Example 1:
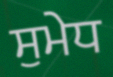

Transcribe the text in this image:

ਸੁਮੇਧ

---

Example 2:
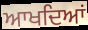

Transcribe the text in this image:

ਆਖਦਿਆਂ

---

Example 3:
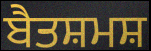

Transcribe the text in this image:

ਬੈਤਸ਼ਮਸ਼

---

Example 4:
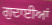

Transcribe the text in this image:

ਗੁਦਾਈਆਂ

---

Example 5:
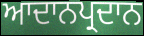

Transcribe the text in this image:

ਆਦਾਨਪ੍ਰਦਾਨ